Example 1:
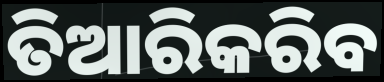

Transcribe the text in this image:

ତିଆରିକରିବ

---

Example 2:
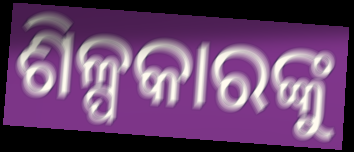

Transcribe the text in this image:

ଶିଳ୍ପକାରଙ୍କୁ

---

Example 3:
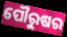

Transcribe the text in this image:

ପୌରୁଷର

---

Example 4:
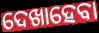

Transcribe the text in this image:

ଦେଖାହେବା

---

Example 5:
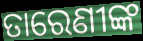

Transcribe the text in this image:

ତାରେଣୀଙ୍କ